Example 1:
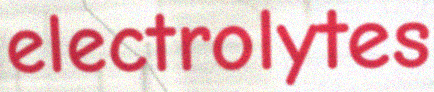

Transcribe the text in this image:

electrolytes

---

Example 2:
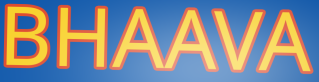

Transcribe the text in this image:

BHAAVA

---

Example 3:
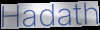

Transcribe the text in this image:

Hadath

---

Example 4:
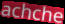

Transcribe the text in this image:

achche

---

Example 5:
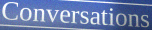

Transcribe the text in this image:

Conversations